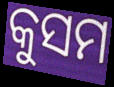
କୁସମ